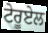
ਟੇਰੂਏਲ